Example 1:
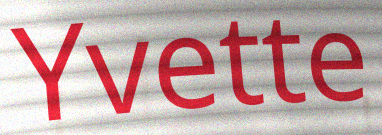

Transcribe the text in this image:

Yvette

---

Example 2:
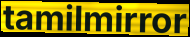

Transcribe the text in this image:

tamilmirror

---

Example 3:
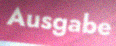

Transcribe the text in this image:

Ausgabe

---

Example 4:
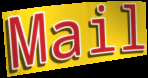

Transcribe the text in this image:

Mail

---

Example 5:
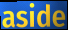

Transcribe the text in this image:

aside